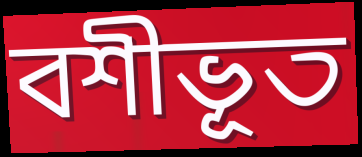
বশীভূত